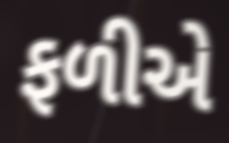
ફળીએ